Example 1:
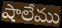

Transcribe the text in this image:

షాలేము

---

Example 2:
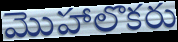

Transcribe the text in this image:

మొహాలొకరు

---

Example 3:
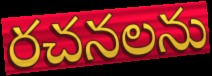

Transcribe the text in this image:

రచనలను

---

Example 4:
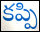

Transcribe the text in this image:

కప్పి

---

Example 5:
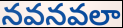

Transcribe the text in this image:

నవనవలా